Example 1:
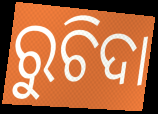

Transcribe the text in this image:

ରୁଚିଦା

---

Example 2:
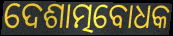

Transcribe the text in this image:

ଦେଶାତ୍ମବୋଧକ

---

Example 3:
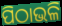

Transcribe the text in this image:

ପିଠାଭଳି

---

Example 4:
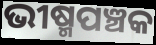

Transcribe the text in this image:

ଭୀଷ୍ମପଞ୍ଚକ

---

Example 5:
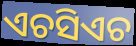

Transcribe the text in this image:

ଏଚସିଏଚ